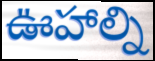
ఊహాల్ని